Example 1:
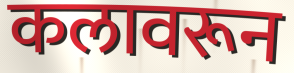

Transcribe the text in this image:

कलावरून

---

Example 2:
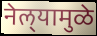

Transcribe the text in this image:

नेल्यामुळे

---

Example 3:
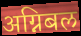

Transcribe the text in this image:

अग्निबल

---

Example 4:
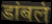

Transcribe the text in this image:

डांबलं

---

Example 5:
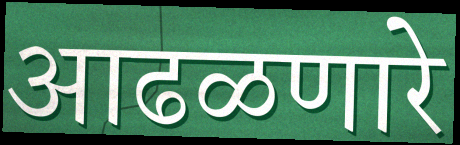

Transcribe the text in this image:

आढळणारे